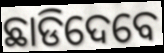
ଛାଡିଦେବେ